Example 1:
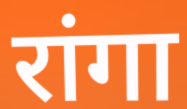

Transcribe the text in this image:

रांगा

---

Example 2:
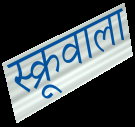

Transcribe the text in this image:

स्क्रूवाला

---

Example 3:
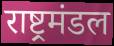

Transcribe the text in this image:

राष्ट्रमंडल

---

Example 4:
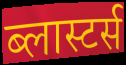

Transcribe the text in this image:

ब्लास्टर्स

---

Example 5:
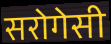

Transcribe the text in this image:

सरोगेसी